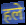
हले